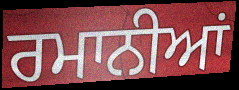
ਰਮਾਨੀਆਂ